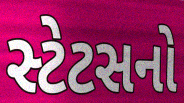
સ્ટેટસનો